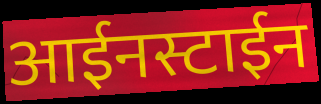
आईनस्टाईन